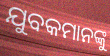
ଯୁବକମାନଙ୍କୁ